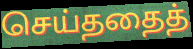
செய்ததைத்